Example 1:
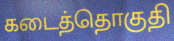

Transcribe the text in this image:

கடைத்தொகுதி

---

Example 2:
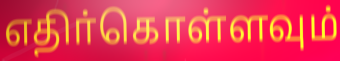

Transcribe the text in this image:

எதிர்கொள்ளவும்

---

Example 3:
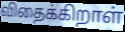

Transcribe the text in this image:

விதைக்கிறாள்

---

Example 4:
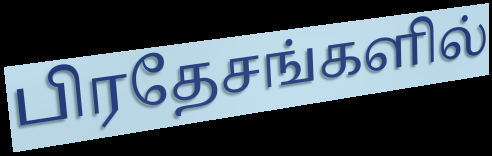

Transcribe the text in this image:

பிரதேசங்களில்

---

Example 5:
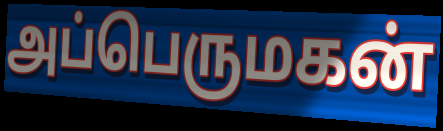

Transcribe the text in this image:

அப்பெருமகன்